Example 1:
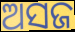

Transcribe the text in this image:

ଅସଜ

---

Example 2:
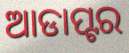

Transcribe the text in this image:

ଆଡାପ୍ଟର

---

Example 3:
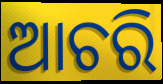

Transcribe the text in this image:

ଆଚରି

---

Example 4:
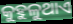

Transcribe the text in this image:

କୁହୁଳୁଥାଏ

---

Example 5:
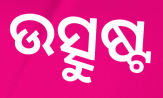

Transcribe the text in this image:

ଉତ୍ସୁଷ୍ଟ